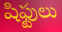
షిఫ్టులు